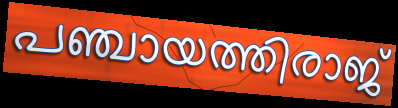
പഞ്ചായത്തിരാജ്